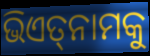
ଭିଏତ୍‌ନାମକୁ